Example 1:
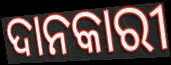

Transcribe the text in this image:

ଦାନକାରୀ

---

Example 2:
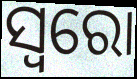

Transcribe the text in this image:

ସ୍ୱରୋ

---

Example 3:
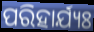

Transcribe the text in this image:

ପରିହାର୍ଯ୍ୟଃ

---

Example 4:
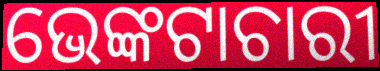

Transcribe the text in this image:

ଭେଙ୍କଟାଚାରୀ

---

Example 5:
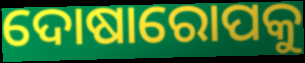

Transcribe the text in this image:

ଦୋଷାରୋପକୁ